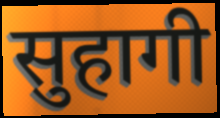
सुहागी